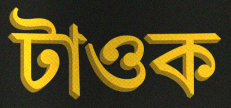
টাওক